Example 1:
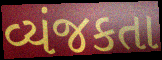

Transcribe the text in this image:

વ્યંજકતા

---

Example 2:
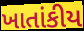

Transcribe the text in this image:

ખાતાંકીય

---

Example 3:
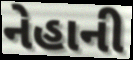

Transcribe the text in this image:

નેહાની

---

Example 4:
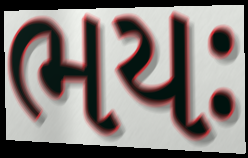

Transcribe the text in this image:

ભયઃ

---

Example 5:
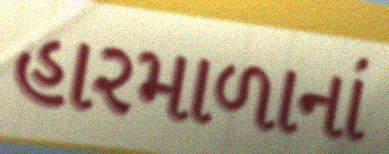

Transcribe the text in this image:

હારમાળાનાં